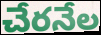
చేరనేల